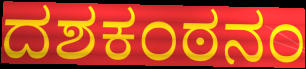
ದಶಕಂಠನಂ